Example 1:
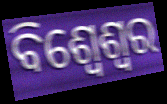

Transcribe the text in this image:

ବିଶ୍ୱେଶ୍ୱର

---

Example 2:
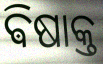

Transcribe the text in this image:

ଵିଷାକ୍ତ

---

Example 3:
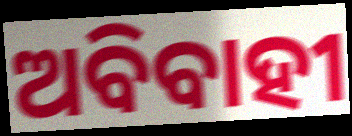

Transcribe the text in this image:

ଅବିବାହୀ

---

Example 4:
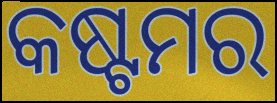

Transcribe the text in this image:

କଷ୍ଟମର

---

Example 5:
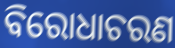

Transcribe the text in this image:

ବିରୋଧାଚରଣ